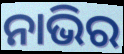
ନାଭିର